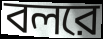
বলরে